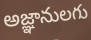
అజ్ఞానులగు